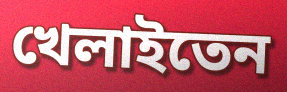
খেলাইতেন